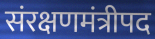
संरक्षणमंत्रीपद